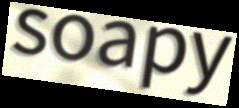
soapy